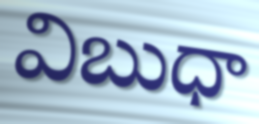
విబుధా